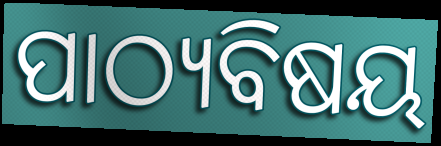
ପାଠ୍ୟବିଷୟ